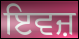
ਇਵਜ਼